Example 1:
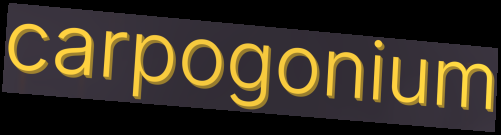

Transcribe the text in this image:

carpogonium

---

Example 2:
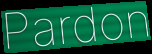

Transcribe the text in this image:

Pardon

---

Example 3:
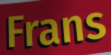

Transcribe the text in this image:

Frans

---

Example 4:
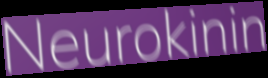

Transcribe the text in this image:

Neurokinin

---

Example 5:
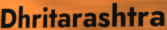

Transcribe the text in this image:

Dhritarashtra